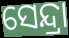
ସେନ୍ଦ୍ରା